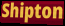
Shipton